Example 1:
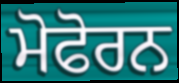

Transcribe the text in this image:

ਮੋਫੋਰਨ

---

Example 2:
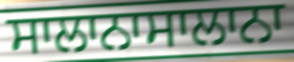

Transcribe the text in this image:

ਸਾਲਾਨਾਸਾਲਾਨਾ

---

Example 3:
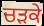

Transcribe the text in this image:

ਚੜਕੇ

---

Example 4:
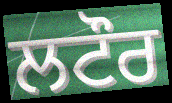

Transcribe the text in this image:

ਲਟੌਰ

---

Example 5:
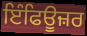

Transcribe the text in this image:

ਇੰਫਿਊਜ਼ਰ